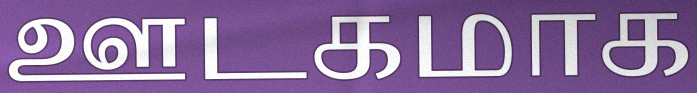
ஊடகமாக